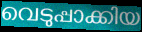
വെടുപ്പാക്കിയ